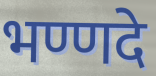
भण्णदे